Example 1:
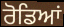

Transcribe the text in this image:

ਰੋਡਿਆਂ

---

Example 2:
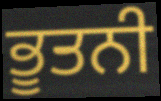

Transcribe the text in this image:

ਭੂਤਨੀ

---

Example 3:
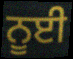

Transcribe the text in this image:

ਨੂਈ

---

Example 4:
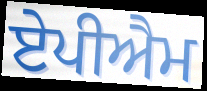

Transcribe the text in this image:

ਏਪੀਐਮ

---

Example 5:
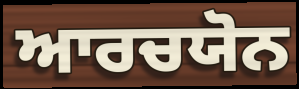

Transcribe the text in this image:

ਆਰਚਯੋਨ